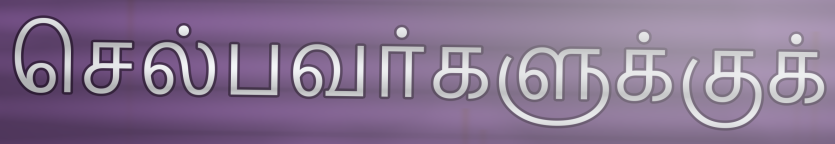
செல்பவர்களுக்குக்